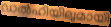
ഡൽഹിയിലുമായി